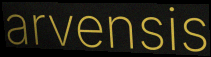
arvensis